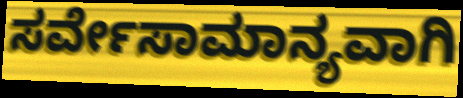
ಸರ್ವೇಸಾಮಾನ್ಯವಾಗಿ